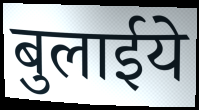
बुलाईये